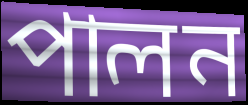
পালন